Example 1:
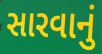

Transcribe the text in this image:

સારવાનું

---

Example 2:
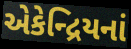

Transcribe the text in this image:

એકેન્દ્રિયનાં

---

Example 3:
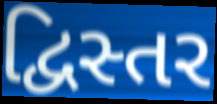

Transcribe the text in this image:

દ્વિસ્તર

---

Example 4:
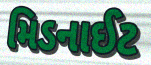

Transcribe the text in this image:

મિડનાઈટ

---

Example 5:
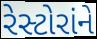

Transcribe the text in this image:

રેસ્ટોરાંને